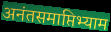
अनंतसमाप्तिभ्याम